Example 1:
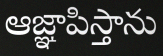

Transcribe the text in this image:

ఆజ్ఞాపిస్తాను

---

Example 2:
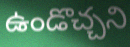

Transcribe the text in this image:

ఉండొచ్చని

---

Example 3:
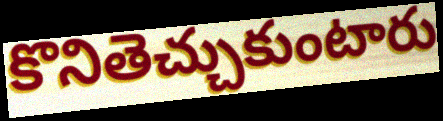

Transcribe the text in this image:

కొనితెచ్చుకుంటారు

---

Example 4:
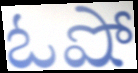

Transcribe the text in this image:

ఓషో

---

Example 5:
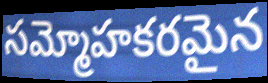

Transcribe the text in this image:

సమ్మోహకరమైన